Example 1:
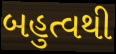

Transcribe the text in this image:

બહુત્વથી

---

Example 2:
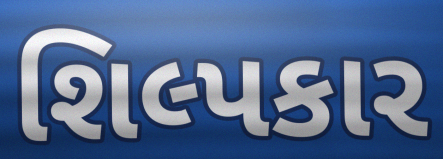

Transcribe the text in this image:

શિલ્પકાર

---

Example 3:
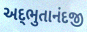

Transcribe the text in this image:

અદ્‌ભુતાનંદજી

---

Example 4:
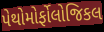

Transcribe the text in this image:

પેથોમોર્ફોલોજિકલ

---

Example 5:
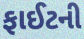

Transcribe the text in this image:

ફાઈટની